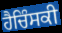
ਹੈਚਿੰਸਕੀ